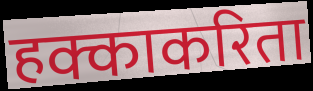
हक्काकरिता